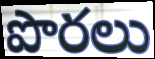
పొరలు